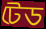
টেড